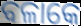
ବଳାକେ